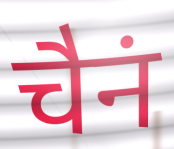
चैनं